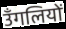
उँगलियों